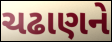
ચઢાણને